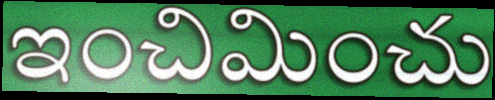
ఇంచిమించు